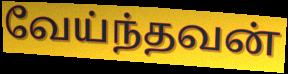
வேய்ந்தவன்